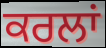
ਕਰਲਾਂ